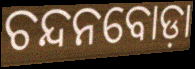
ଚନ୍ଦନବୋଡ଼ା